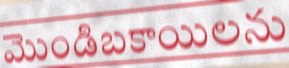
మొండిబకాయిలను